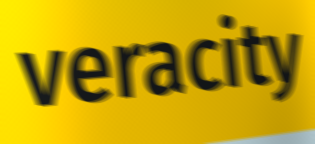
veracity